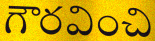
గౌరవించి